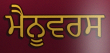
ਮੈਨੂਵਰਸ